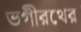
ভগীরথের